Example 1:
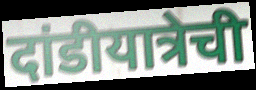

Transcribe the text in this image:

दांडीयात्रेची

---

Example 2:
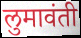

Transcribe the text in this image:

लुमावंती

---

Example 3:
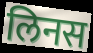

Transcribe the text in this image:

लिनस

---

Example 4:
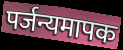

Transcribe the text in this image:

पर्जन्यमापक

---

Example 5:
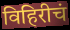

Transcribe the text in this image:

विहिरीचं